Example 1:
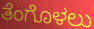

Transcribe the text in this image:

ತೆಂಗೊಳಲು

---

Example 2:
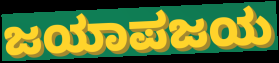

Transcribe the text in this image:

ಜಯಾಪಜಯ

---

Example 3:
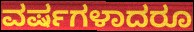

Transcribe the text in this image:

ವರ್ಷಗಳಾದರೂ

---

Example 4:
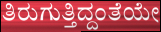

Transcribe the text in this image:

ತಿರುಗುತ್ತಿದ್ದಂತೆಯೇ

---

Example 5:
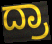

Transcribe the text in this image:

ದ್ರಾ